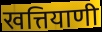
खत्तियाणी